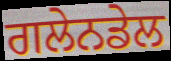
ਗਲੇਨਡੇਲ